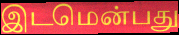
இடமென்பது